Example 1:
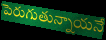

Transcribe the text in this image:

పెరుగుతున్నాయనే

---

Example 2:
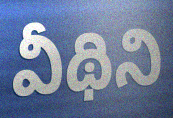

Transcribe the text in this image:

వీథిని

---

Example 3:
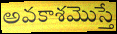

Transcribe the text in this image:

అవకాశమొస్తే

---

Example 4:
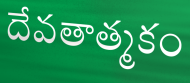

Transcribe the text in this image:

దేవతాత్మకం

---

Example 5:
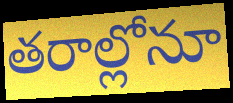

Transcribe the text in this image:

తరాల్లోనూ